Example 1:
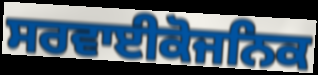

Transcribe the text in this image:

ਸਰਵਾਈਕੋਜਨਿਕ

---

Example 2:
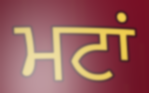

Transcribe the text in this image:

ਮਟਾਂ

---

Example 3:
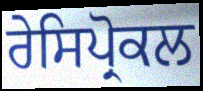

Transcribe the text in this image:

ਰੇਸਿਪ੍ਰੋਕਲ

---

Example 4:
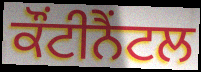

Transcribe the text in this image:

ਕੌਂਟੀਨੈਂਟਲ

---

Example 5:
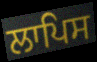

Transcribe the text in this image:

ਲਾਪਿਸ